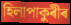
হিলাপাকুৰীৰ